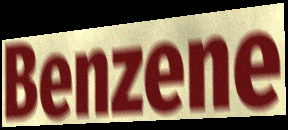
Benzene